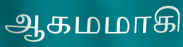
ஆகமமாகி